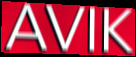
AVIK